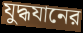
যুদ্ধযানের